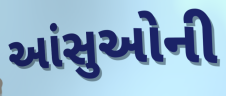
આંસુઓની